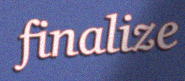
finalize